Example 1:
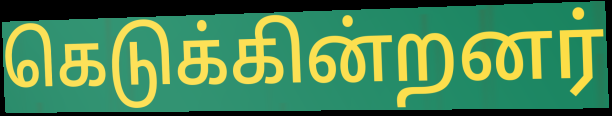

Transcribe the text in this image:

கெடுக்கின்றனர்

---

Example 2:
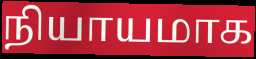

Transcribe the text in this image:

நியாயமாக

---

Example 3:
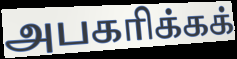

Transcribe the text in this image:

அபகரிக்கக்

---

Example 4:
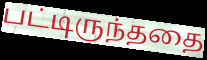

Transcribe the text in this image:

பட்டிருந்ததை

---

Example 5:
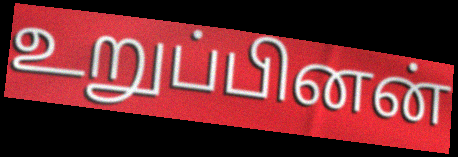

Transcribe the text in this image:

உறுப்பினன்